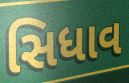
સિધાવ